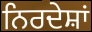
ਨਿਰਦੇਸ਼ਾਂ